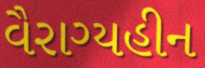
વૈરાગ્યહીન